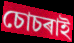
চোচৰাই